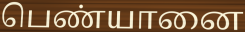
பெண்யானை